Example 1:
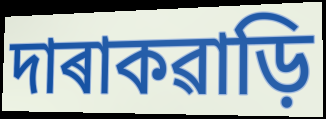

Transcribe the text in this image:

দাৰাকৱাড়ি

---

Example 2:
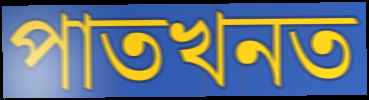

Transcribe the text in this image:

পাতখনত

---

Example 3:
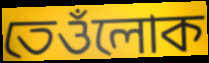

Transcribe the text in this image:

তেওঁলোক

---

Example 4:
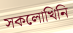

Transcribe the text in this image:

সকলোখিনি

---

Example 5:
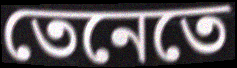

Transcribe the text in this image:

তেনেতে